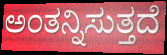
ಅಂತನ್ನಿಸುತ್ತದೆ